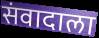
संवादाला